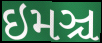
ઇમઞ્ચ